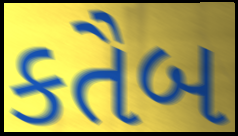
કતૈબ